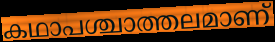
കഥാപശ്ചാത്തലമാണ്